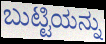
ಬುಟ್ಟಿಯನ್ನು